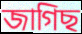
জাগিছ